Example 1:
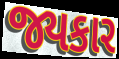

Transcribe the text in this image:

જ્યકાર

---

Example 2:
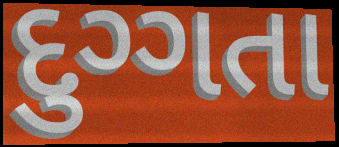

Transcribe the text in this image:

દુગ્ગતા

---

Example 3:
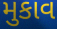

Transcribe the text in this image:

મુકાવ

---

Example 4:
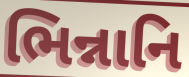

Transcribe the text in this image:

ભિન્નાનિ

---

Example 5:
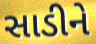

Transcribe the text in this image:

સાડીને